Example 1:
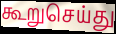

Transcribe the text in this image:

கூறுசெய்து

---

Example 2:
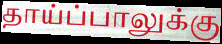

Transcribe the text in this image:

தாய்ப்பாலுக்கு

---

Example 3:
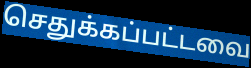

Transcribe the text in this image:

செதுக்கப்பட்டவை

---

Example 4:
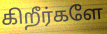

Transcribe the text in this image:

கிறீர்களே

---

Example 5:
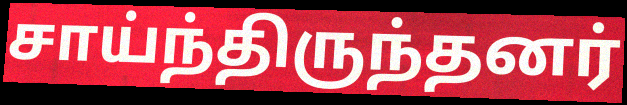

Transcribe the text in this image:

சாய்ந்திருந்தனர்